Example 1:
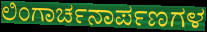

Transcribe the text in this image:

ಲಿಂಗಾರ್ಚನಾರ್ಪಣಗಳ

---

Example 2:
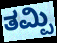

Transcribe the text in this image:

ತಮ್ಪಿ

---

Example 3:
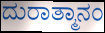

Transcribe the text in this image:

ದುರಾತ್ಮಾನಂ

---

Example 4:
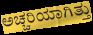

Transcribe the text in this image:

ಅಚ್ಚರಿಯಾಗಿತ್ತು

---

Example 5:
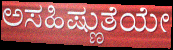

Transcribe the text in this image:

ಅಸಹಿಷ್ಣುತೆಯೇ